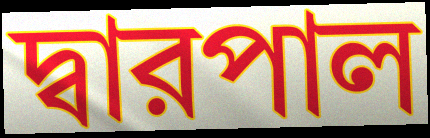
দ্বারপাল